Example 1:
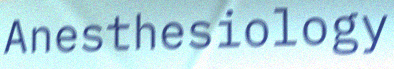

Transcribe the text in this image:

Anesthesiology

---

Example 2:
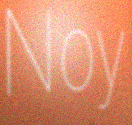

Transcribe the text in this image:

Noy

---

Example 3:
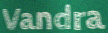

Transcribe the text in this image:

Vandra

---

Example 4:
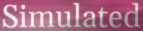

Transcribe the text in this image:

Simulated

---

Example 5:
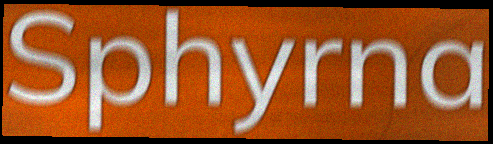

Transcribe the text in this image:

Sphyrna